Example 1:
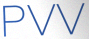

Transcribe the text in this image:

PVV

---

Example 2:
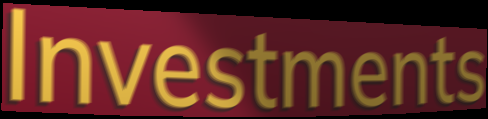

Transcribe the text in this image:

Investments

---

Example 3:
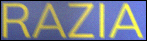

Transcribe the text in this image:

RAZIA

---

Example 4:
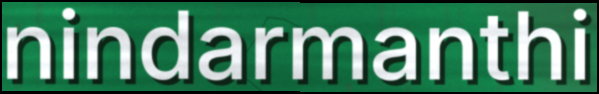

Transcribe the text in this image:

nindarmanthi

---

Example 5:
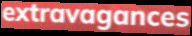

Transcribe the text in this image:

extravagances